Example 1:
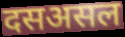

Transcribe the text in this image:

दसअसल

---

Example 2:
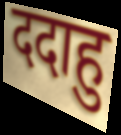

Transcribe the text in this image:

ददाहु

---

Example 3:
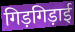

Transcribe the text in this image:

गिड़गिड़ाई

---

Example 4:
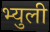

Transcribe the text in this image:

भ्युली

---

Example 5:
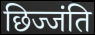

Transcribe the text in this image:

छिज्जंति